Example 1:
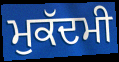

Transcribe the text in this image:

ਮੁਕੱਦਮੀ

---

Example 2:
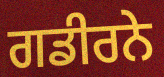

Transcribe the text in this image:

ਗਡੀਰਨੇ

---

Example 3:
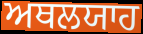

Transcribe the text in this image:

ਅਥਲਯਾਹ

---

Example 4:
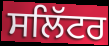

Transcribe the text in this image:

ਸਲਿੱਟਰ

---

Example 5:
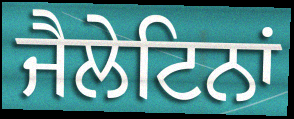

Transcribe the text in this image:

ਜੈਲੇਟਿਨਾਂ